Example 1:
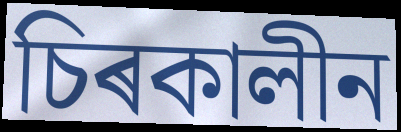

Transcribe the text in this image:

চিৰকালীন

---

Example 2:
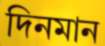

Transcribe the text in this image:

দিনমান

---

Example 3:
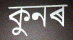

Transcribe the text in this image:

কুনৰ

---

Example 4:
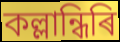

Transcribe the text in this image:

কল্লান্ধিৰি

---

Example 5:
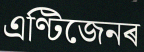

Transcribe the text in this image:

এণ্টিজেনৰ